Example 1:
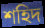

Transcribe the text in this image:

শহিদ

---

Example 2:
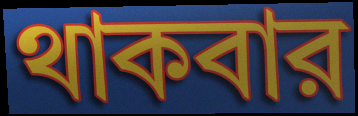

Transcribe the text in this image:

থাকবার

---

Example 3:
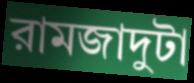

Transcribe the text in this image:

রামজাদুটা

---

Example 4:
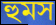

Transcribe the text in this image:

হুমস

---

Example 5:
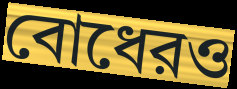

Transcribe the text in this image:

বোধেরও